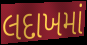
લદાખમાં